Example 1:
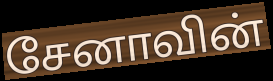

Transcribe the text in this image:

சேனாவின்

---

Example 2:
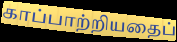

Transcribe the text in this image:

காப்பாற்றியதைப்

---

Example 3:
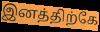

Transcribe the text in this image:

இனத்திற்கே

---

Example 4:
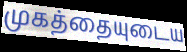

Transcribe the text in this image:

முகத்தையுடைய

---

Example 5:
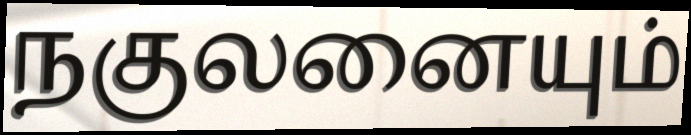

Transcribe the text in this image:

நகுலனையும்